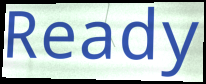
Ready